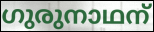
ഗുരുനാഥന്